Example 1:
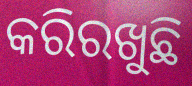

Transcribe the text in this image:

କରିରଖୁଛି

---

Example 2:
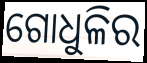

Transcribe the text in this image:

ଗୋଧୁଳିର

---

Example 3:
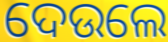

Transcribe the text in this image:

ଦେଉଲେ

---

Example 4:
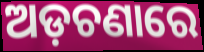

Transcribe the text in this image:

ଅଡ଼ଚଣାରେ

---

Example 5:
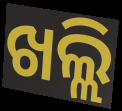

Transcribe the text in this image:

ଖଲ୍ଲି